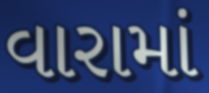
વારામાં